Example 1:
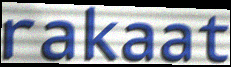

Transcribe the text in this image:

rakaat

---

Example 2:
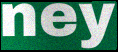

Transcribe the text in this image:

ney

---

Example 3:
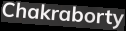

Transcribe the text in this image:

Chakraborty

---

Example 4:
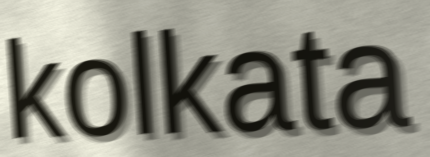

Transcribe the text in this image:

kolkata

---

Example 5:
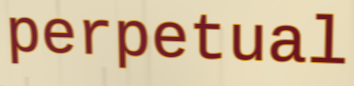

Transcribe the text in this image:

perpetual